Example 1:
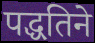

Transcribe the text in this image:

पद्धतिने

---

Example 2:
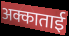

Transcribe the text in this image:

अक्काताई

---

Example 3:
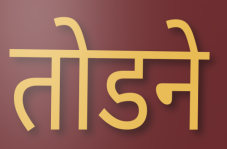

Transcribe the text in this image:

तोडने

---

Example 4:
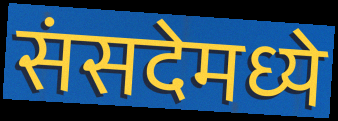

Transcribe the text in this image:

संसदेमध्ये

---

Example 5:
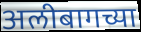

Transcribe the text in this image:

अलीबागच्या